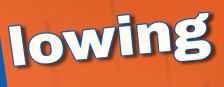
lowing